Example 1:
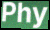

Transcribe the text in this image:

Phy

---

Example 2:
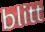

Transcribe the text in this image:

blitt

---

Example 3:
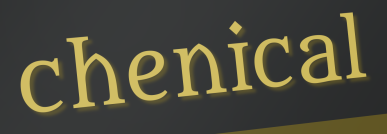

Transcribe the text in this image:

chenical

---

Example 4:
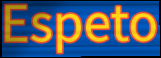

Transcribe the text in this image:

Espeto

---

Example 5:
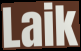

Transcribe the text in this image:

Laik